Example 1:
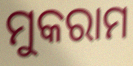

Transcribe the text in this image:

ମୁକରାମ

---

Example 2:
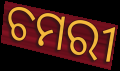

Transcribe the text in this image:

ଚମରୀ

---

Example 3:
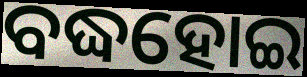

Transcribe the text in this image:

ବଦ୍ଧହୋଇ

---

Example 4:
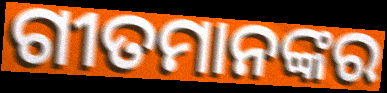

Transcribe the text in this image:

ଗୀତମାନଙ୍କର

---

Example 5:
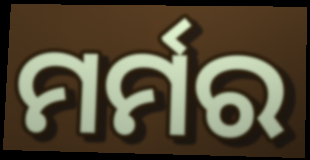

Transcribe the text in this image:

ମର୍ମର